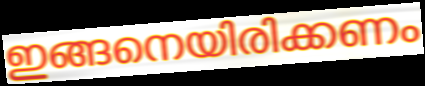
ഇങ്ങനെയിരിക്കണം